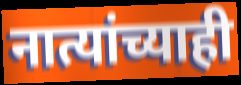
नात्यांच्याही